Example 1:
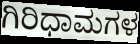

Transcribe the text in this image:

ಗಿರಿಧಾಮಗಳ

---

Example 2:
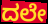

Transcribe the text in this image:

ದಲೇ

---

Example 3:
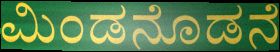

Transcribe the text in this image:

ಮಿಂಡನೊಡನೆ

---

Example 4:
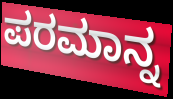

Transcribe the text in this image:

ಪರಮಾನ್ನ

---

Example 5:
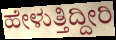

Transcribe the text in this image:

ಹೇಳುತ್ತಿದ್ದೀರಿ